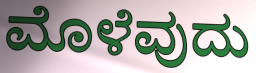
ಮೊಳೆವುದು